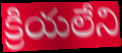
క్రియలేని